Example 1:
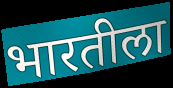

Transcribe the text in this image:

भारतीला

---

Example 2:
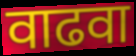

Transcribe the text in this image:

वाढवा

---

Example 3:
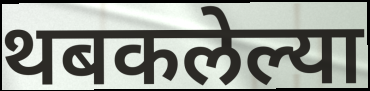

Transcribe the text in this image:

थबकलेल्या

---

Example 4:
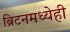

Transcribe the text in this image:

ब्रिटनमध्येही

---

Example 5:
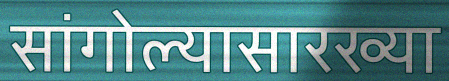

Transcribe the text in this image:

सांगोल्यासारख्या